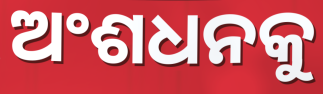
ଅଂଶଧନକୁ